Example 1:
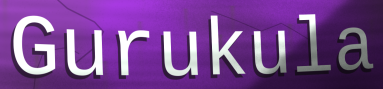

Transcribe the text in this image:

Gurukula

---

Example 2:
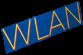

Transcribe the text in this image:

WLAN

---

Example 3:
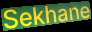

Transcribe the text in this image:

Sekhane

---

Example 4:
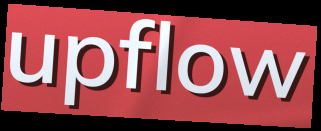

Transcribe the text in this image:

upflow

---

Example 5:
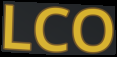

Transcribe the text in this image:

LCO